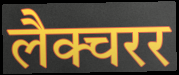
लैक्चरर